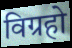
विग्रहो